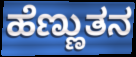
ಹೆಣ್ಣುತನ